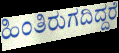
ಹಿಂತಿರುಗದಿದ್ದರೆ